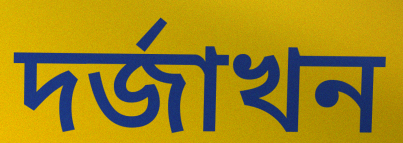
দৰ্জাখন